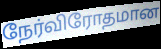
நேர்விரோதமான